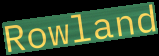
Rowland